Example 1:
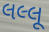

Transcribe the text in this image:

લલ્લૂ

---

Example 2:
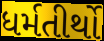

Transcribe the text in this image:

ધર્મતીર્થો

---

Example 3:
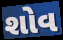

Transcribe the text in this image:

શોવ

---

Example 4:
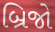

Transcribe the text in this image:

બ્રિજો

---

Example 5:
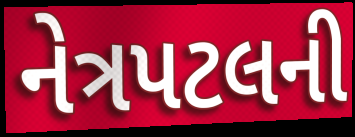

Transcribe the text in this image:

નેત્રપટલની